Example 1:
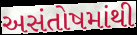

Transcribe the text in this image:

અસંતોષમાંથી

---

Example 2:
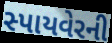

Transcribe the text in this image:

સ્પાયવેરની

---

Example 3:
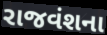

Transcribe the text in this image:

રાજવંશના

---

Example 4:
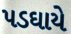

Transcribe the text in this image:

પડઘાયે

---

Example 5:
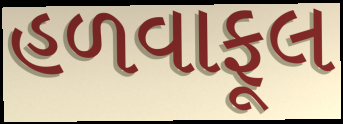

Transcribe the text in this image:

હળવાફૂલ